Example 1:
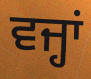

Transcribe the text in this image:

ਵਜ੍ਹਾਂ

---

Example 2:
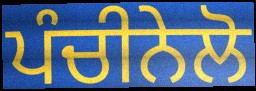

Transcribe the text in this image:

ਪੰਚੀਨੇਲੋ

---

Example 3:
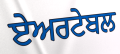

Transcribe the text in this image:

ਏਅਰਟੇਬਲ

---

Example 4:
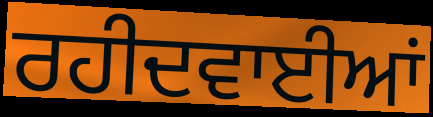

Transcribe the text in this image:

ਰਹੀਦਵਾਈਆਂ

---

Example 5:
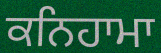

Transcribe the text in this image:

ਕਨਿਹਾਮਾ